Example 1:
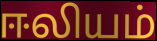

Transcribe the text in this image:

ஈலியம்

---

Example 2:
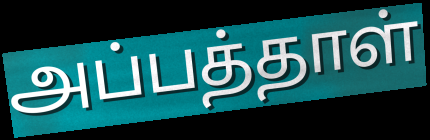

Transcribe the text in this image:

அப்பத்தாள்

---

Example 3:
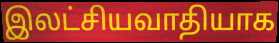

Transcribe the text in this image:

இலட்சியவாதியாக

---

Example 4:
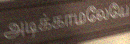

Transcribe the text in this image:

அடிக்காமலேயே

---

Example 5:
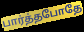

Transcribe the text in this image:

பார்த்தபோதே